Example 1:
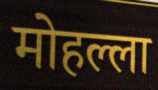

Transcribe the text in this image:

मोहल्ला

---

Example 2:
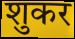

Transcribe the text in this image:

शुकर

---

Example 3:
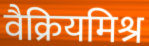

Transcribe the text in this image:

वैक्रियमिश्र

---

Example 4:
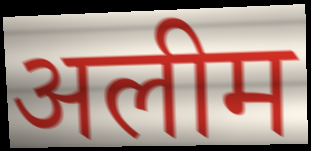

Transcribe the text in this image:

अलीम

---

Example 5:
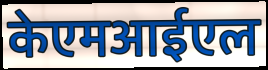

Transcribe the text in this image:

केएमआईएल